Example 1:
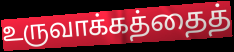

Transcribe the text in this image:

உருவாக்கத்தைத்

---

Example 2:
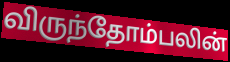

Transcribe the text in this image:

விருந்தோம்பலின்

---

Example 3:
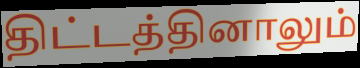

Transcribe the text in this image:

திட்டத்தினாலும்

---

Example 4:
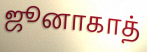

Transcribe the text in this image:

ஜூனாகாத்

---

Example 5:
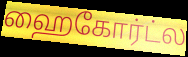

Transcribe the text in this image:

ஹைகோர்ட்ல